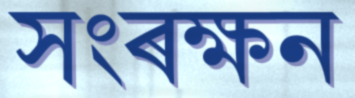
সংৰক্ষন